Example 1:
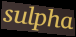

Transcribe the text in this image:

sulpha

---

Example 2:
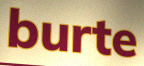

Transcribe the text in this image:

burte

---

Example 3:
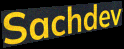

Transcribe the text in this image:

Sachdev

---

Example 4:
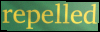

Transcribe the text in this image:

repelled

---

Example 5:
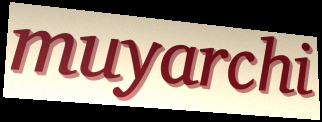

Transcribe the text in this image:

muyarchi